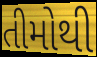
તીમોથી